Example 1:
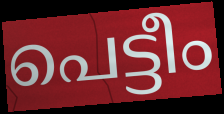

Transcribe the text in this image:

പെട്ടീം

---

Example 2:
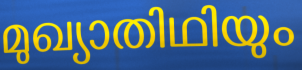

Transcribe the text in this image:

മുഖ്യാതിഥിയും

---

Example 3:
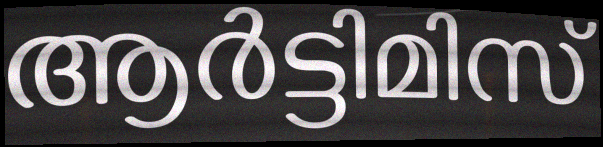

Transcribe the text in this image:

ആർട്ടിമിസ്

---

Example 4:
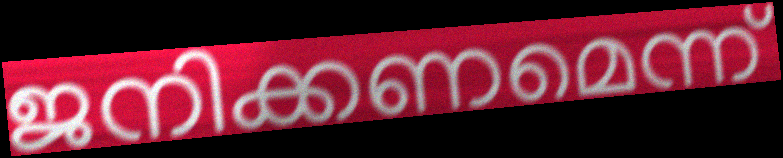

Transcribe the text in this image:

ജനിക്കണമെന്ന്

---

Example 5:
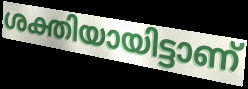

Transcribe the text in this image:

ശക്തിയായിട്ടാണ്